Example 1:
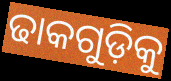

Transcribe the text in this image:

ଢାକଗୁଡ଼ିକୁ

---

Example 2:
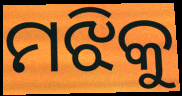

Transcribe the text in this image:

ମଝିକୁ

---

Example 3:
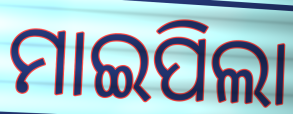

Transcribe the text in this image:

ମାଇପିଲା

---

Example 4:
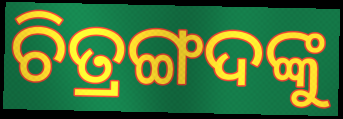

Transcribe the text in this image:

ଚିତ୍ରଙ୍ଗଦଙ୍କୁ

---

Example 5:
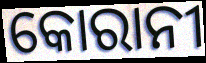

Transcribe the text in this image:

କୋରାନୀ